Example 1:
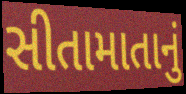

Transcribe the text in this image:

સીતામાતાનું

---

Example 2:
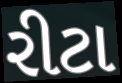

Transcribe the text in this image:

રીટા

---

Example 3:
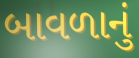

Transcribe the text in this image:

બાવળાનું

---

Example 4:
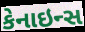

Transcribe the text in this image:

કેનાઇન્સ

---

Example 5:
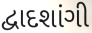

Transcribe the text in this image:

દ્વાદશાંગી